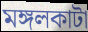
মঙ্গলকাটা